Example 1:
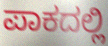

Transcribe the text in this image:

ಪಾಕದಲ್ಲಿ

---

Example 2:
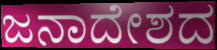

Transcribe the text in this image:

ಜನಾದೇಶದ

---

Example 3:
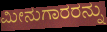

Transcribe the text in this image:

ಮೀನುಗಾರರನ್ನು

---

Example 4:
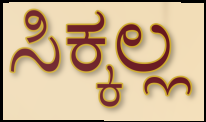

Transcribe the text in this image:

ಸಿಕ್ಕಲ್ಲ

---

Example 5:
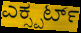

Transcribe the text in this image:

ಎಕ್ಸ್ಪರ್ಟ್